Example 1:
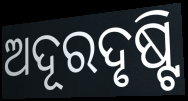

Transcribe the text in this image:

ଅଦୂରଦୃଷ୍ଟି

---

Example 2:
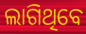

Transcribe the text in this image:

ଲାଗିଥିବେ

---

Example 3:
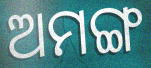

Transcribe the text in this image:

ଅମଙ୍ଗ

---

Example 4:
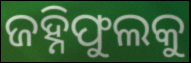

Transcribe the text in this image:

ଜହ୍ନିଫୁଲକୁ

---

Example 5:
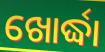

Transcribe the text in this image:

ଖୋର୍ଦ୍ଧା